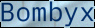
Bombyx